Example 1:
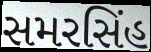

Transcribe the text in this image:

સમરસિંહ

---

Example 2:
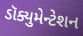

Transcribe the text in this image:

ડૉક્યુમેન્ટેશન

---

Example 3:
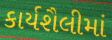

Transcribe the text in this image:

કાર્યશૈલીમાં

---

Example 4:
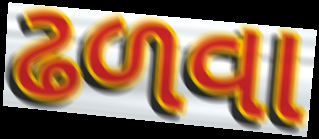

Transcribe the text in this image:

ઢળવા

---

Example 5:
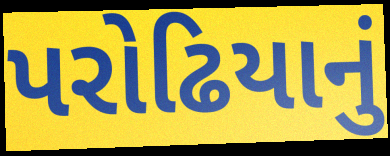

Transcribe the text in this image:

પરોઢિયાનું